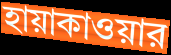
হায়াকাওয়ার